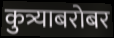
कुत्र्याबरोबर